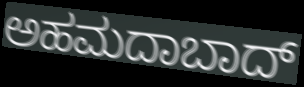
ಅಹಮದಾಬಾದ್